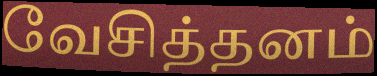
வேசித்தனம்